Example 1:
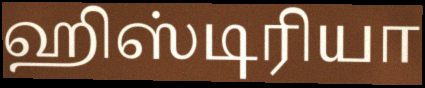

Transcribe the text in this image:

ஹிஸ்டிரியா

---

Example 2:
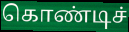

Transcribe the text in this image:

கொண்டிச்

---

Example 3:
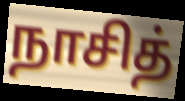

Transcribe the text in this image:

நாசித்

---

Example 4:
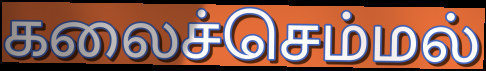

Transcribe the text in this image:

கலைச்செம்மல்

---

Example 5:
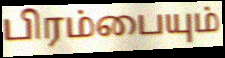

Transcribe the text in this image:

பிரம்பையும்